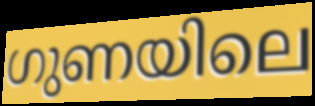
ഗുണയിലെ